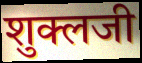
शुक्‍लजी